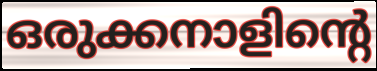
ഒരുക്കനാളിന്റെ